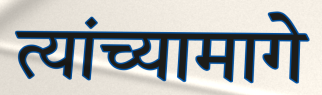
त्यांच्यामागे